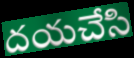
దయచేసి